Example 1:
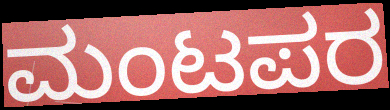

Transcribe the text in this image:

ಮಂಟಪರ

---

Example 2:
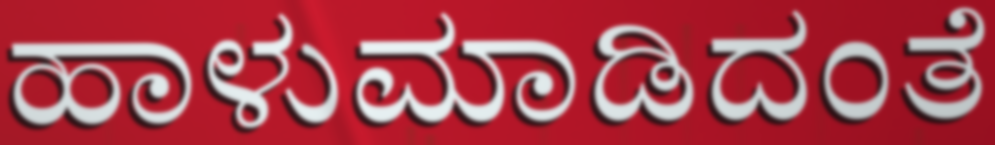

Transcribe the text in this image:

ಹಾಳುಮಾಡಿದಂತೆ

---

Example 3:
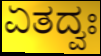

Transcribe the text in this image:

ಏತದ್ವಃ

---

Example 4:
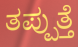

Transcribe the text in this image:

ತಪ್ಪುತ್ತೆ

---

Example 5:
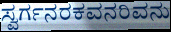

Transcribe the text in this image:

ಸ್ವರ್ಗನರಕವನರಿವನು